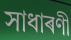
সাধাৰণী